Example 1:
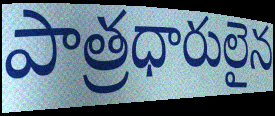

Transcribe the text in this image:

పాత్రధారులైన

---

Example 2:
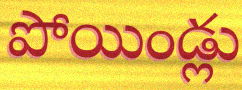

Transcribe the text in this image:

పోయిండ్లు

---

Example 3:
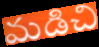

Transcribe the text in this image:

మడిచి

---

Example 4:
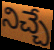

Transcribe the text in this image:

నిచ్చే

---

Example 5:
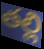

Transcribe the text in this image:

తల్లి